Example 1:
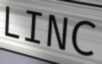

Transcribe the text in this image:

LINC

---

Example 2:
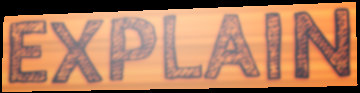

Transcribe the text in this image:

EXPLAIN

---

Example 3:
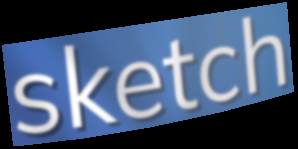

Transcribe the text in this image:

sketch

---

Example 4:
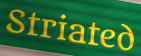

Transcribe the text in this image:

Striated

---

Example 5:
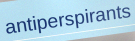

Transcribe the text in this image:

antiperspirants